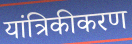
यांत्रिकीकरण